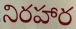
నిరహార